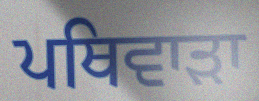
ਪਥਿਵਾੜਾ